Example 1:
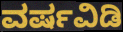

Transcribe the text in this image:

ವರ್ಷವಿಡಿ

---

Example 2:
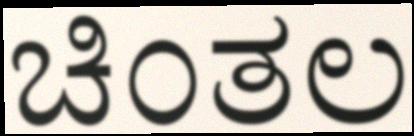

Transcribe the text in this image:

ಚಿಂತಲ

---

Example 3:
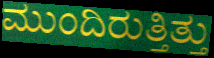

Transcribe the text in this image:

ಮುಂದಿರುತ್ತಿತ್ತು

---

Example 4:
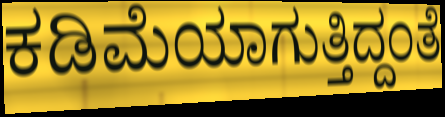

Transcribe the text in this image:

ಕಡಿಮೆಯಾಗುತ್ತಿದ್ದಂತೆ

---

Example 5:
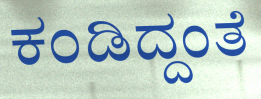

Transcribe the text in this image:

ಕಂಡಿದ್ದಂತೆ